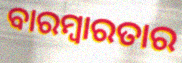
ବାରମ୍ବାରତାର